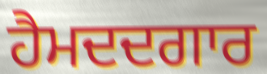
ਹੈਮਦਦਗਾਰ